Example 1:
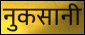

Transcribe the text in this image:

नुकसानी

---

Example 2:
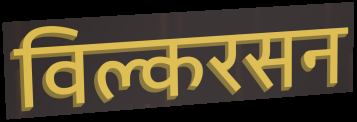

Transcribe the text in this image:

विल्करसन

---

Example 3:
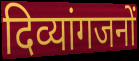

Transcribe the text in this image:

दिव्यांगजनों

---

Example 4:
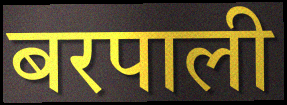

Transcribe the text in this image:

बरपाली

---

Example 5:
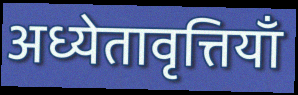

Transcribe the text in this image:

अध्येतावृत्तियाँ